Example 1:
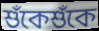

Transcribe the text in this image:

শুঁকেশুঁকে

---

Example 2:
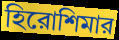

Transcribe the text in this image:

হিরোশিমার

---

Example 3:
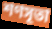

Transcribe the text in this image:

শণসূতা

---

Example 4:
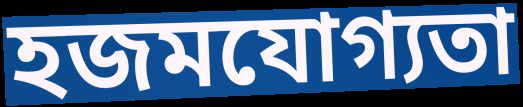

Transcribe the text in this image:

হজমযোগ্যতা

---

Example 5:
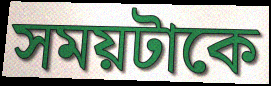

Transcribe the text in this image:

সময়টাকে